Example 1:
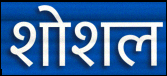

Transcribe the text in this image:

शोशल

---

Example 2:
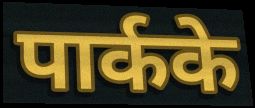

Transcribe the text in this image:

पार्कके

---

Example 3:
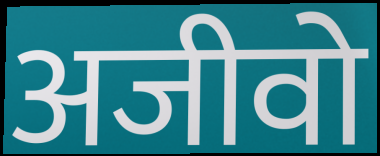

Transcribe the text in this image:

अजीवो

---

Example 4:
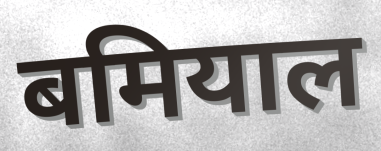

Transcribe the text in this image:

बमियाल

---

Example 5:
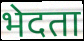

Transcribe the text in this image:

भेदता